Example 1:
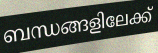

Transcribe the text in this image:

ബന്ധങ്ങളിലേക്ക്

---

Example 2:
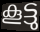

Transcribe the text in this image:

കൂട്ടു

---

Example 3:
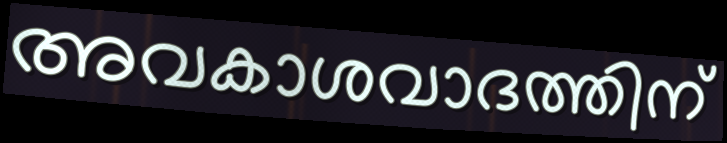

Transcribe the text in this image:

അവകാശവാദത്തിന്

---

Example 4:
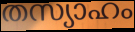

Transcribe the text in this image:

തസ്യാഹം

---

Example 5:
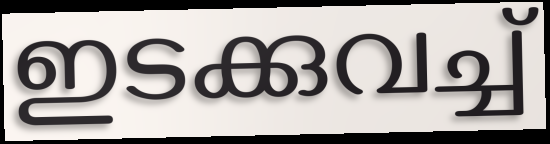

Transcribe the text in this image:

ഇടക്കുവച്ച്